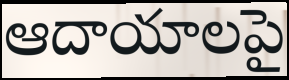
ఆదాయాలపై